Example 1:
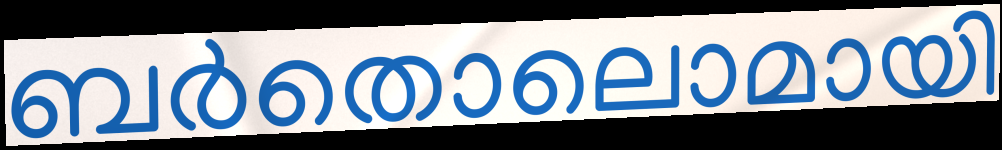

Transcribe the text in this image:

ബർതൊലൊമായി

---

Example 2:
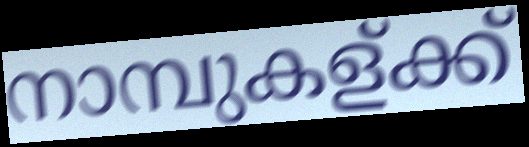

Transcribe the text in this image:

നാമ്പുകള്ക്ക്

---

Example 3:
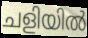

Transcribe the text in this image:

ചളിയിൽ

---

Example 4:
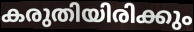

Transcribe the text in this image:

കരുതിയിരിക്കും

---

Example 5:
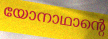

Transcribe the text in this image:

യോനാഥാന്റെ